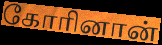
கோரினான்